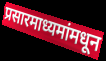
प्रसारमाध्यमांमधून